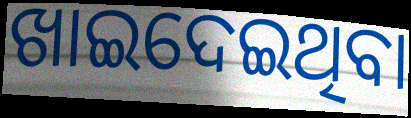
ଖାଇଦେଇଥିବା